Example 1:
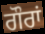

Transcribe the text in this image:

ਗੌਰਾਂ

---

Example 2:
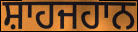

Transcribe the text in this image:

ਸ਼ਾਹਜਹਾਨ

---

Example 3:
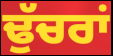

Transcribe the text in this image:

ਢੁੱਚਰਾਂ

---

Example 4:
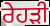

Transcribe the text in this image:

ਰੇਹੜੀ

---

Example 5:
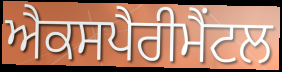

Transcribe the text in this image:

ਐਕਸਪੈਰੀਮੈਂਟਲ